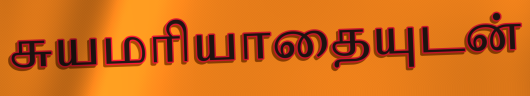
சுயமரியாதையுடன்